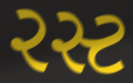
રસ્ટ